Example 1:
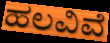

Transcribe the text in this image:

ಹಲವಿವೆ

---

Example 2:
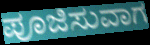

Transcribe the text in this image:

ಪೂಜಿಸುವಾಗ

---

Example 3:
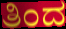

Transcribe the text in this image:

ತಿಂದ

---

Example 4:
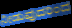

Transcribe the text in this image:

ನೀಡುವುದರಿಂದ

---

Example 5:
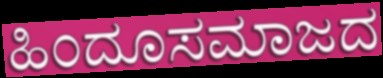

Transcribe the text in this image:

ಹಿಂದೂಸಮಾಜದ